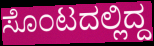
ಸೊಂಟದಲ್ಲಿದ್ದ